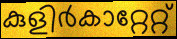
കുളിർകാറ്റേറ്റ്